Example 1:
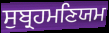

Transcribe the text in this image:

ਸੁਬ੍ਰਹਮਣਿਯਮ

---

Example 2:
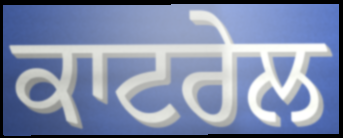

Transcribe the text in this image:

ਕਾਟਰੇਲ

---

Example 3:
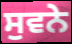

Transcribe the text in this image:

ਸੁਵਨੇ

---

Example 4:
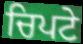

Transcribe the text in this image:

ਚਿਪਟੇ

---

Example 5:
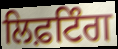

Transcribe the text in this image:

ਲਿਫ਼ਟਿੰਗ